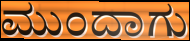
ಮುಂದಾಗು